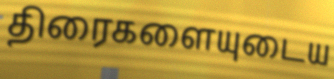
திரைகளையுடைய